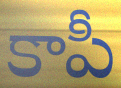
కాపీ